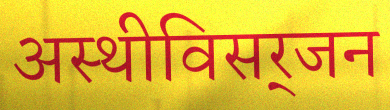
अस्थीविसर्जन